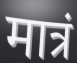
मात्रं